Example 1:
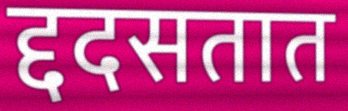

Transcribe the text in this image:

द्ददसतात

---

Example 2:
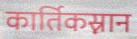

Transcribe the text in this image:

कार्तिकस्नान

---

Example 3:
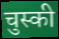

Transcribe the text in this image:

चुस्की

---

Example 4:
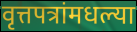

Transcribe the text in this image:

वृत्तपत्रांमधल्या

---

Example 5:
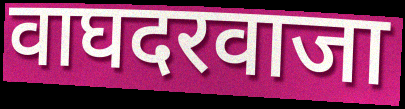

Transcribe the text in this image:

वाघदरवाजा